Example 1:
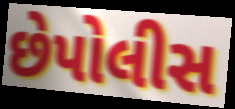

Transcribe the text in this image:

છેપોલીસ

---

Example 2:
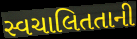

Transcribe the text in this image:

સ્વચાલિતતાની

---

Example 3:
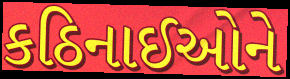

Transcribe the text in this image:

કઠિનાઈઓને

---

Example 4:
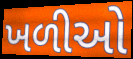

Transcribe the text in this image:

ખળીઓ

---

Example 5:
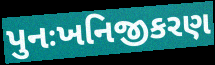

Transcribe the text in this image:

પુનઃખનિજીકરણ